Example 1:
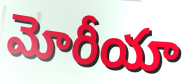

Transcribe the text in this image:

మోరీయా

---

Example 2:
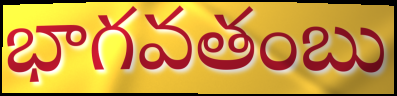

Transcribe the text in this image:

భాగవతంబు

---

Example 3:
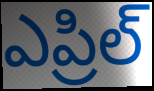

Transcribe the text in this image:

ఎప్రిల్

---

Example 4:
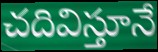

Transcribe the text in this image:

చదివిస్తూనే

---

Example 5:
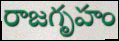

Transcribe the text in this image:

రాజగృహం